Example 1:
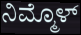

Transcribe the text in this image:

ನಿಮ್ಮೊಳ್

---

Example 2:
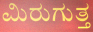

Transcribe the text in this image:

ಮಿರುಗುತ್ತ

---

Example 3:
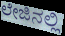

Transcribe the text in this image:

ಲೇಜಿನಲ್ಲಿ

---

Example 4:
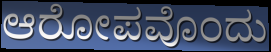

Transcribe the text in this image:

ಆರೋಪವೊಂದು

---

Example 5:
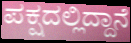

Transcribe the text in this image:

ಪಕ್ಷದಲ್ಲಿದ್ದಾನೆ